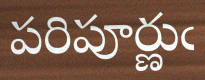
పరిపూర్ణుఁ